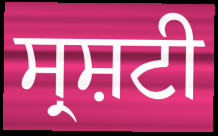
ਸ੍ਰਸ਼ਟੀ